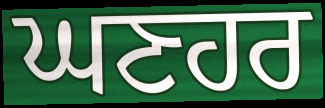
ਘਣਹਰ